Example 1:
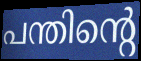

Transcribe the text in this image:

പന്തിന്റെ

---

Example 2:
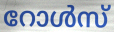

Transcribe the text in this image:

റോൾസ്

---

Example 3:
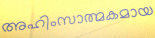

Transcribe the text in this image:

അഹിംസാത്മകമായ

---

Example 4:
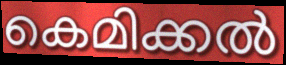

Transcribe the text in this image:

കെമിക്കൽ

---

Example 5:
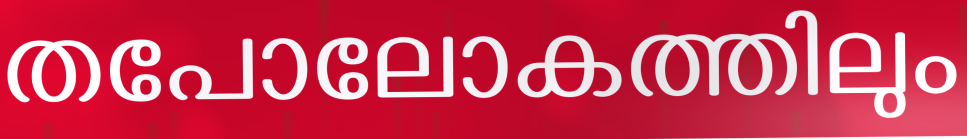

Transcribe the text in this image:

തപോലോകത്തിലും